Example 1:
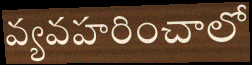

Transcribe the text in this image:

వ్యవహరించాలో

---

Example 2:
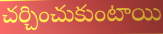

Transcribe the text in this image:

చర్చించుకుంటాయి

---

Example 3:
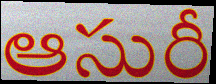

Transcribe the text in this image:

ఆసురీ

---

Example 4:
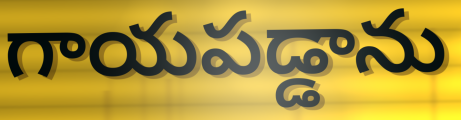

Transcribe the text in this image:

గాయపడ్డాను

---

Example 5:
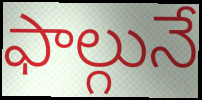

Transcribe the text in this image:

ఫాల్గునే